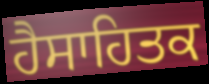
ਹੈਸਾਹਿਤਕ